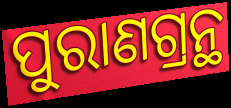
ପୁରାଣଗ୍ରନ୍ଥ